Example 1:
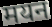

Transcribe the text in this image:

मयन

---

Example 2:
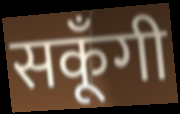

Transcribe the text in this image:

सकूँगी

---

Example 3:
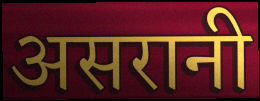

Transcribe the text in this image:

असरानी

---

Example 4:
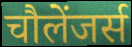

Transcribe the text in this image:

चौलेंजर्स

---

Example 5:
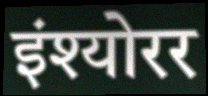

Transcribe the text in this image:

इंश्योरर